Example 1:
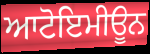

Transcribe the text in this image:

ਆਟੋਇਮੀਊਨ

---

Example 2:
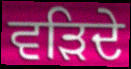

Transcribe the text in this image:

ਵੜਿਦੇ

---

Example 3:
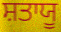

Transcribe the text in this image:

ਸ਼ਤਾਯੂ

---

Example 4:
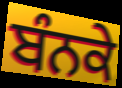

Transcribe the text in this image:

ਬੰਨਕੇ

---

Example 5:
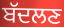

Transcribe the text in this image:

ਬੱਦਲਣ